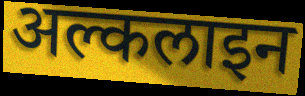
अल्कलाइन